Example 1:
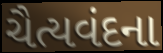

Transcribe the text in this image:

ચૈત્યવંદના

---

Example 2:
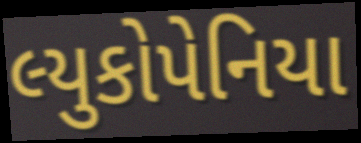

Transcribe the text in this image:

લ્યુકોપેનિયા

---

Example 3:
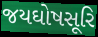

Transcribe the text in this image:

જયઘોષસૂરિ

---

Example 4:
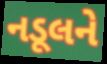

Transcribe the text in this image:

નડૂલને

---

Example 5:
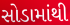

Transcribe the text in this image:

સોડામાંથી